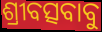
ଶ୍ରୀବତ୍ସବାବୁ